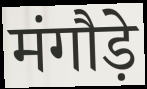
मंगौड़े